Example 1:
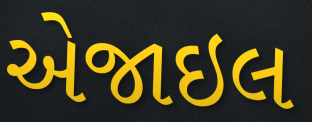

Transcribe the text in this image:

એજાઇલ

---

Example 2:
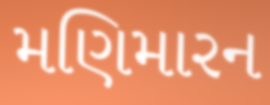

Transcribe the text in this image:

મણિમારન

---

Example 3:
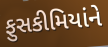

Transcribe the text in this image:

ફુસકીમિયાંને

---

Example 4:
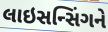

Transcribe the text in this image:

લાઇસન્સિંગને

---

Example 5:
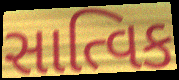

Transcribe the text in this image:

સાત્વિક